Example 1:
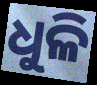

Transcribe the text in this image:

ଧୁଳି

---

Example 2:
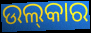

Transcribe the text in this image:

ଉଲ୍‍କାର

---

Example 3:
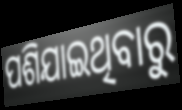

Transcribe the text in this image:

ପଶିଯାଇଥିବାରୁ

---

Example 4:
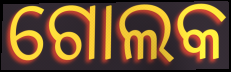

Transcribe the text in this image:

ଗୋଲକ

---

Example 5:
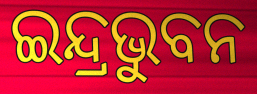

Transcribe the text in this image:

ଇନ୍ଦ୍ରଭୁବନ